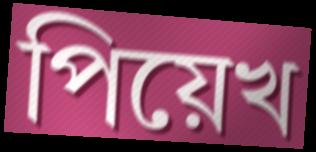
পিয়েখ